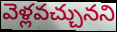
వెళ్లవచ్చునని